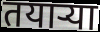
तयाऱ्या